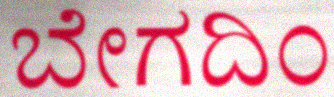
ಬೇಗದಿಂ